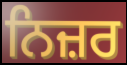
ਨਿਜ਼ਰ